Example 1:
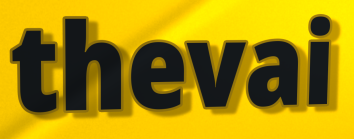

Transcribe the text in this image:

thevai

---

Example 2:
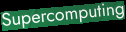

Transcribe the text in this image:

Supercomputing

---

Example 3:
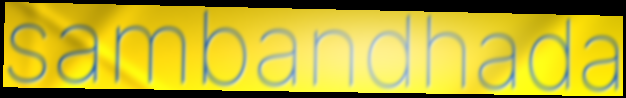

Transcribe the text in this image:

sambandhada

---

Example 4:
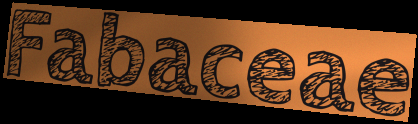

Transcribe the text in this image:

Fabaceae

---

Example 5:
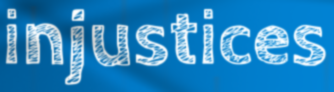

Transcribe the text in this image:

injustices